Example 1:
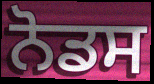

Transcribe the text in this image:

ਨੋਡਸ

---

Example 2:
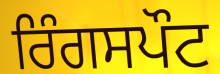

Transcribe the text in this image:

ਰਿੰਗਸਪੌਟ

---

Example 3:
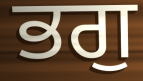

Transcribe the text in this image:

ਭਗੁ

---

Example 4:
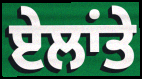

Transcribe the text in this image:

ਏਲਾਂਤੇ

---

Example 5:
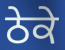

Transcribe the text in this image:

ਠੇਕੇ